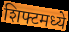
शिफ्टमध्ये